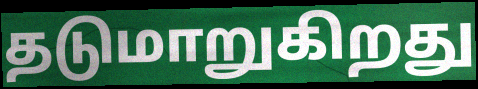
தடுமாறுகிறது